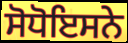
ਸੋਧੋਇਸਨੇ